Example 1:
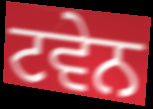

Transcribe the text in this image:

ਟਵੇਨ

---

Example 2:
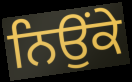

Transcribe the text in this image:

ਨਿਉਂਕੇ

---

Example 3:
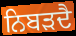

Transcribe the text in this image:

ਨਿਬੜਦੈ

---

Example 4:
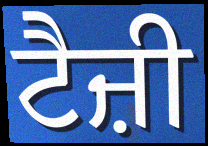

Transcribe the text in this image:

ਟੈਜ਼ੀ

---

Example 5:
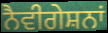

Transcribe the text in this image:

ਨੈਵੀਗੇਸ਼ਨਾਂ